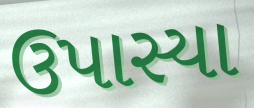
ઉપાસ્યા